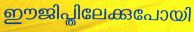
ഈജിപ്തിലേക്കുപോയി